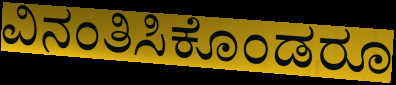
ವಿನಂತಿಸಿಕೊಂಡರೂ